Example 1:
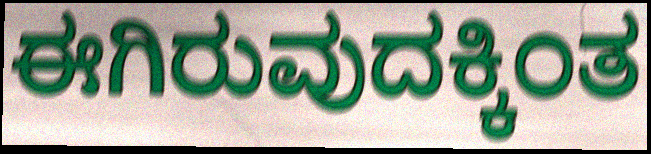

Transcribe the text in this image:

ಈಗಿರುವುದಕ್ಕಿಂತ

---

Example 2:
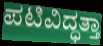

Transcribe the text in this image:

ಪಟಿವಿದ್ಧತ್ತಾ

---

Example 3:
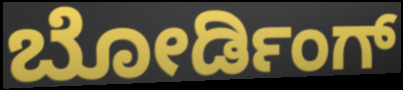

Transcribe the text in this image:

ಬೋರ್ಡಿಂಗ್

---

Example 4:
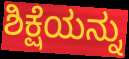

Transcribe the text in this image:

ಶಿಕ್ಷೆಯನ್ನು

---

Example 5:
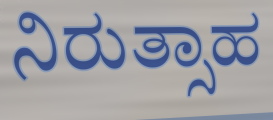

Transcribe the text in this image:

ನಿರುತ್ಸಾಹ